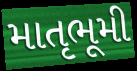
માતૃભૂમી